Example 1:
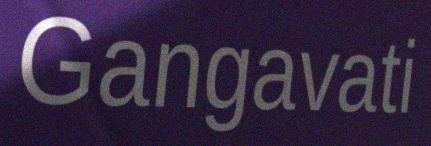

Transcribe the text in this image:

Gangavati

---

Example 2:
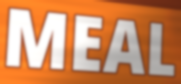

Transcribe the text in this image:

MEAL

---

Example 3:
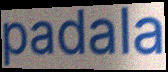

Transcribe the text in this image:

padala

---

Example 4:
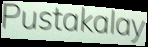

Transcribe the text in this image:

Pustakalay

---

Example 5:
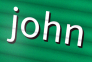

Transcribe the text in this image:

john